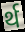
र्थ